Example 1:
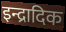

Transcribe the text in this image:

इन्द्रादिक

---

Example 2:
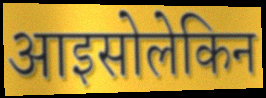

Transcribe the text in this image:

आइसोलेकिन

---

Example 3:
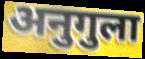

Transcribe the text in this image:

अनुगुला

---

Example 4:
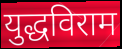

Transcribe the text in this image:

युद्धविराम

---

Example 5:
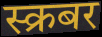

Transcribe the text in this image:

स्‍क्रबर